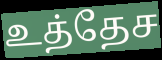
உத்தேச